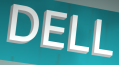
DELL